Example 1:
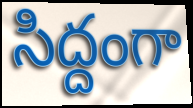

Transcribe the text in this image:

సిద్దంగా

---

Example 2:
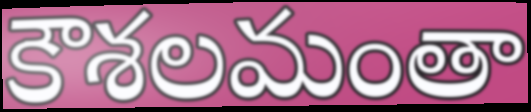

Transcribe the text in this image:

కౌశలమంతా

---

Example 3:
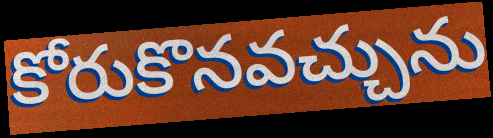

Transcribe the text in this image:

కోరుకొనవచ్చును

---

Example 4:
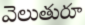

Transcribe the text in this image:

వెలుతురూ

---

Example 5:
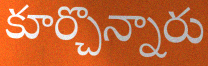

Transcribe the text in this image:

కూర్చొన్నారు